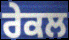
ਰੇਕਲ